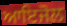
ਆਇਜੋਲ